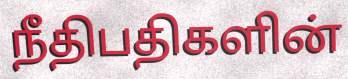
நீதிபதிகளின்